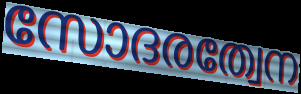
സോദരത്വേന